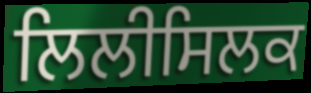
ਲਿਲੀਸਿਲਕ